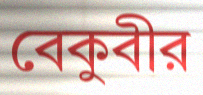
বেকুবীর